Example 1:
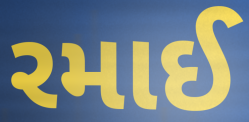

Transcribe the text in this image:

રમાઈ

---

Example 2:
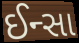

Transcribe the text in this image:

ઈન્સા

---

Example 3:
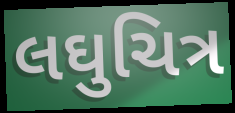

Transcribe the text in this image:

લઘુચિત્ર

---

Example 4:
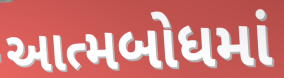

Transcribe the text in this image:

આત્મબોધમાં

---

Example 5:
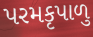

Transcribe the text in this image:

પરમકૃપાળુ